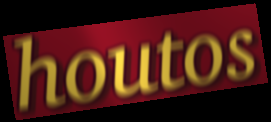
houtos